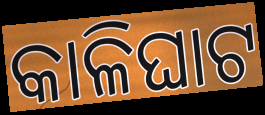
କାଳିଘାଟ